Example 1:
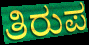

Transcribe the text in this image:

ತಿರುಪ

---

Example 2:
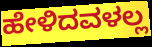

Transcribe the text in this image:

ಹೇಳಿದವಳಲ್ಲ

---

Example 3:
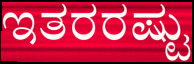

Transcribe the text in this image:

ಇತರರಷ್ಟು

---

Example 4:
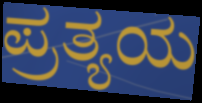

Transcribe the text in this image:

ಪ್ರತ್ಯಯ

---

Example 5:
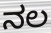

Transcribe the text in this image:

ನಲ